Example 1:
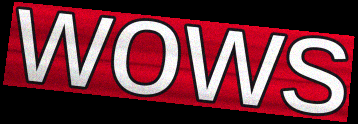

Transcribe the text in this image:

wows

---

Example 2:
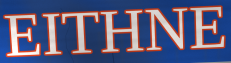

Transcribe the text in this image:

EITHNE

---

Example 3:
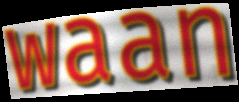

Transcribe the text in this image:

waan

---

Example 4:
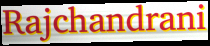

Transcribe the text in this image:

Rajchandrani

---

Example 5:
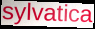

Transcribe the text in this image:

sylvatica